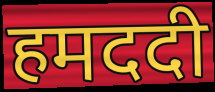
हमददी